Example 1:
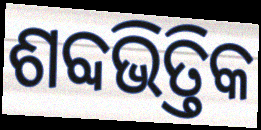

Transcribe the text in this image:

ଶବ୍ଦଭିତ୍ତିକ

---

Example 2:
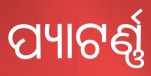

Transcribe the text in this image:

ପ୍ୟାଟର୍ଣ୍ଣ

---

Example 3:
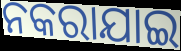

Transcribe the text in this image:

ନକରାଯାଇ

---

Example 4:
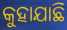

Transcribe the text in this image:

କୁହାଯାଛି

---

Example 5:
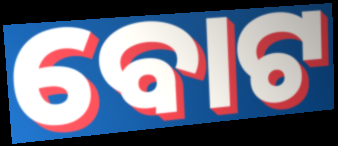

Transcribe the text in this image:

ବୋଟ